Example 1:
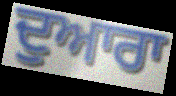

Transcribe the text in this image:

ਦੁਆਰਾ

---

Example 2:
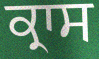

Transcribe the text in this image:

ਕ੍ਰਾਸ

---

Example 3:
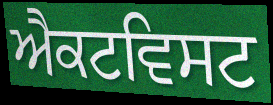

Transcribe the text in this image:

ਐਕਟਵਿਸਟ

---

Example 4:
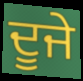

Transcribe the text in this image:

ਦੂਜੇ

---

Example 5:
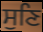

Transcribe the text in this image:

ਸੁਣਿ